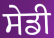
ਸੇਡੀ